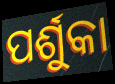
ପର୍ଶୁକା